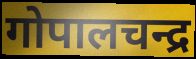
गोपालचन्द्र